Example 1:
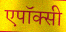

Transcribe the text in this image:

एपॉक्सी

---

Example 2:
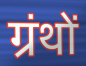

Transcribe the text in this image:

ग्रंथों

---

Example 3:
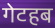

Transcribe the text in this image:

गेटहब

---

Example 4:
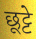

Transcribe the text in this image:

छूट्टे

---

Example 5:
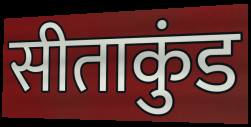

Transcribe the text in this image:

सीताकुंड